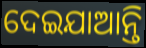
ଦେଇଯାଆନ୍ତି